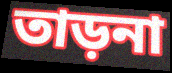
তাড়না